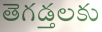
తెగడ్తలకు